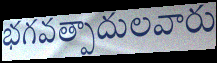
భగవత్పాదులవారు